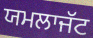
ਯਮਲਾਜੱਟ